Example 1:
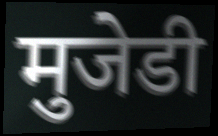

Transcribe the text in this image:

मुजेडी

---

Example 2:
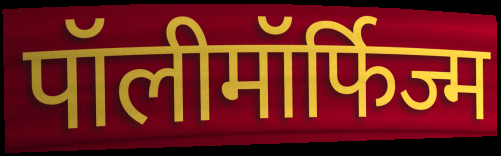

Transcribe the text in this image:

पॉलीमॉर्फिज्म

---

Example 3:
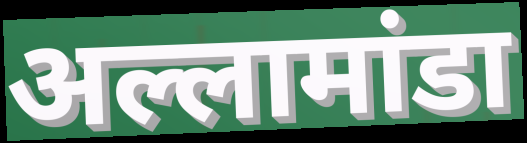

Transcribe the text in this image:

अल्लामांडा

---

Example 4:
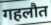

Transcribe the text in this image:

गहलौत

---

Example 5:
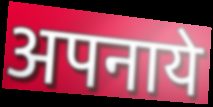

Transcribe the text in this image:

अपनाये